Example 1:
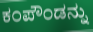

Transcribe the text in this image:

ಕಂಪೌಂಡನ್ನು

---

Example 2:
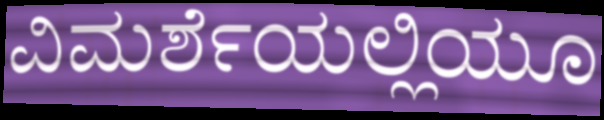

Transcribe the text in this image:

ವಿಮರ್ಶೆಯಲ್ಲಿಯೂ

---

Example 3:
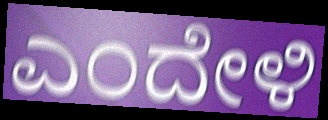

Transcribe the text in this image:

ಎಂದೇಳಿ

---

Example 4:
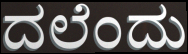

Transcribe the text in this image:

ದಲೆಂದು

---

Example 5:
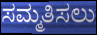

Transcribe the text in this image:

ಸಮ್ಮತಿಸಲು